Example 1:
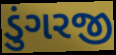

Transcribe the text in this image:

ડુંગરજી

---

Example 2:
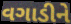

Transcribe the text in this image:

વગાડીને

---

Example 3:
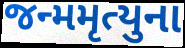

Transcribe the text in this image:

જન્મમૃત્યુના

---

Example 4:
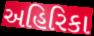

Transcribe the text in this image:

અહિરિકા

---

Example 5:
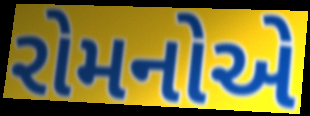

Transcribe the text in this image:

રોમનોએ